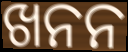
ଖନନ